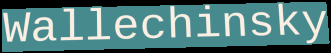
Wallechinsky